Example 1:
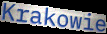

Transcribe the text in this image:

Krakowie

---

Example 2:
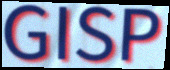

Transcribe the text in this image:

GISP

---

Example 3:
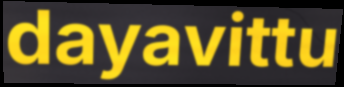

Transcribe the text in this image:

dayavittu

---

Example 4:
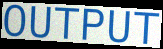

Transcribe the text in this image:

OUTPUT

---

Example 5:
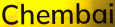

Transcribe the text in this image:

Chembai